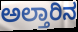
ಅಲ್ತಾರಿನ